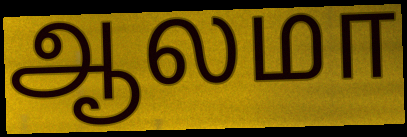
ஆலமா